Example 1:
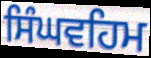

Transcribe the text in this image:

ਸਿੰਘਵਹਿਮ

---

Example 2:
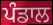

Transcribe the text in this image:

ਪੰਡਾਲ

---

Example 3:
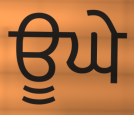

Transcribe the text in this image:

ਊਘੇ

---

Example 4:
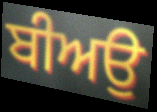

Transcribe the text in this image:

ਬੀਅਉ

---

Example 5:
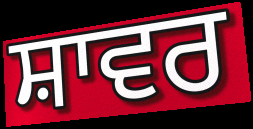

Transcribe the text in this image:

ਸ਼ਾਵਰ